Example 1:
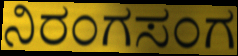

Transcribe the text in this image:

ನಿರಂಗಸಂಗ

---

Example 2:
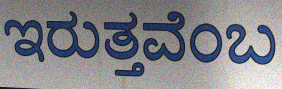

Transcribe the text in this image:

ಇರುತ್ತವೆಂಬ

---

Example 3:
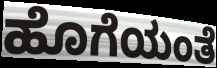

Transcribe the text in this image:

ಹೊಗೆಯಂತೆ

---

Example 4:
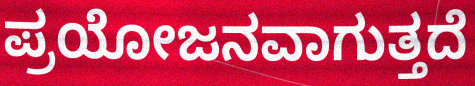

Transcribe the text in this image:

ಪ್ರಯೋಜನವಾಗುತ್ತದೆ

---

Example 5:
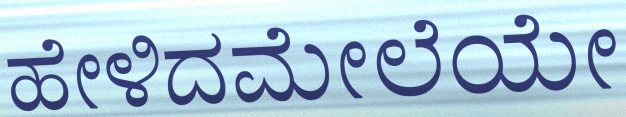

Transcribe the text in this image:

ಹೇಳಿದಮೇಲೆಯೇ